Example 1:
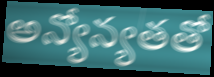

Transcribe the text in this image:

అన్యోన్యతతో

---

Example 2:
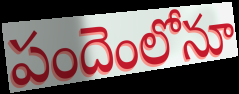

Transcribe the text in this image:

పందెంలోనూ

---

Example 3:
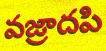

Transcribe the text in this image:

వజ్రాదపి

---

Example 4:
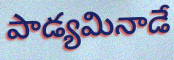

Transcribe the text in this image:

పాడ్యమినాడే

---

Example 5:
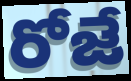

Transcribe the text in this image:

రోజే